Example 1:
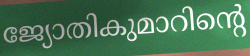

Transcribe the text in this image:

ജ്യോതികുമാറിന്റെ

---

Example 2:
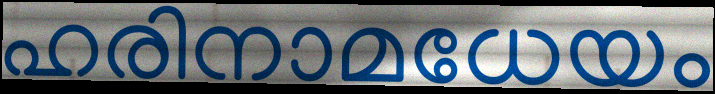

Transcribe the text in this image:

ഹരിനാമധേയം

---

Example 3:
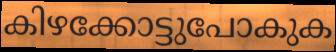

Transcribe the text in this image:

കിഴക്കോട്ടുപോകുക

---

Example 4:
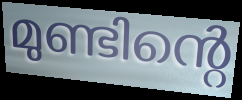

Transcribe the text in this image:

മുണ്ടിന്റെ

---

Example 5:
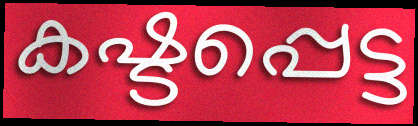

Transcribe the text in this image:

കഷ്ടപ്പെട്ട